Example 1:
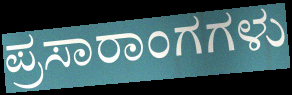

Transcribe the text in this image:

ಪ್ರಸಾರಾಂಗಗಳು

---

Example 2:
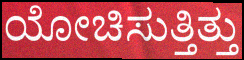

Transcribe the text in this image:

ಯೋಚಿಸುತ್ತಿತ್ತು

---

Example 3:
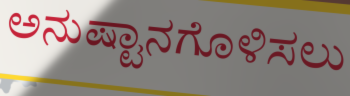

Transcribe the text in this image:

ಅನುಷ್ಟಾನಗೊಳಿಸಲು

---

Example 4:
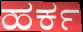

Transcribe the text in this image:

ಹರ್ಕ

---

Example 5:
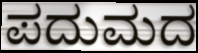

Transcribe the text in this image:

ಪದುಮದ